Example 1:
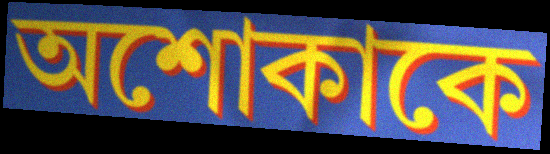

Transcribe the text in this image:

অশোকাকে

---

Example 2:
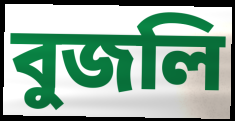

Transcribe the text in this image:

বুজলি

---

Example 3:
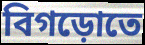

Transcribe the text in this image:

বিগড়োতে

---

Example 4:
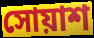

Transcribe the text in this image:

সোয়াশ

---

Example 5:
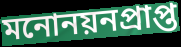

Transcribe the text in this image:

মনোনয়নপ্রাপ্ত